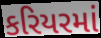
કરિયરમાં